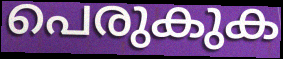
പെരുകുക